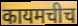
कायमचीच